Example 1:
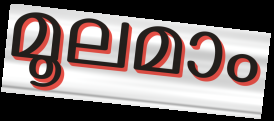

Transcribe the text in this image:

മൂലമാം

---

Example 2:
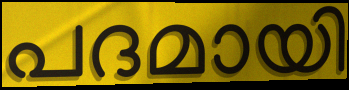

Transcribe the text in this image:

പദമായി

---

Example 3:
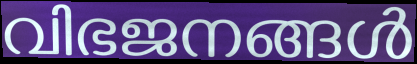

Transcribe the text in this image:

വിഭജനങ്ങൾ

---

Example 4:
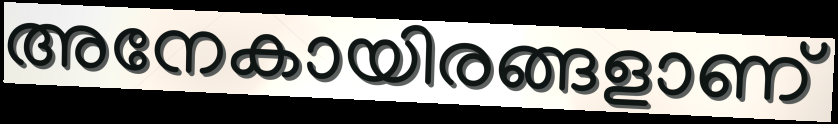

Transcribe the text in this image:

അനേകായിരങ്ങളാണ്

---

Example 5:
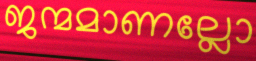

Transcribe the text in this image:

ജന്മമാണല്ലോ